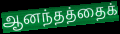
ஆனந்தத்தைக்